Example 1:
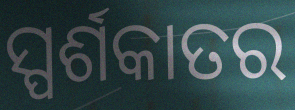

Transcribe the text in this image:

ସ୍ପର୍ଶକାତର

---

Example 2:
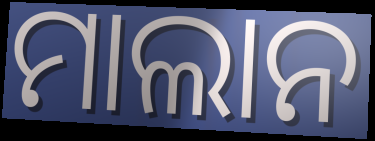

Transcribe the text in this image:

ମାଲାନ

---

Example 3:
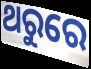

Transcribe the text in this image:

ଥରୁରେ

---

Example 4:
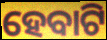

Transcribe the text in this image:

ହେବାଟି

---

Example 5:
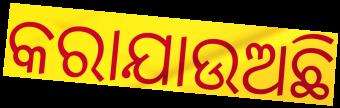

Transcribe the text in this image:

କରାଯାଉଅଛି